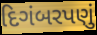
દિગંબરપણું